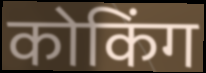
कोकिंग